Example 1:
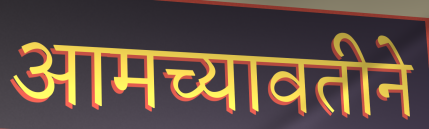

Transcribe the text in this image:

आमच्यावतीने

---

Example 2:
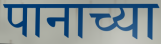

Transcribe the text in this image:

पानाच्या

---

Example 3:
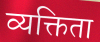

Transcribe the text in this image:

व्यक्तिता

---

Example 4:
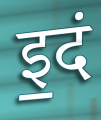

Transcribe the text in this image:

इ॒दं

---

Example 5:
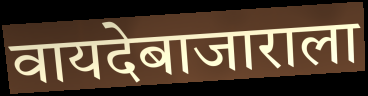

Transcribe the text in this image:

वायदेबाजाराला